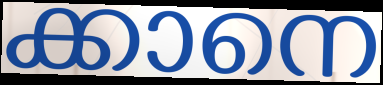
ക്കാനെ